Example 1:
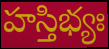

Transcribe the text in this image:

హస్తిభ్యః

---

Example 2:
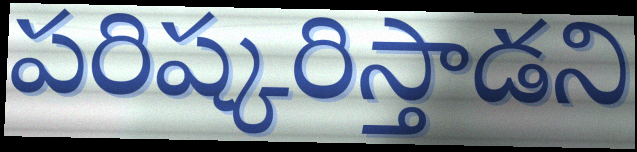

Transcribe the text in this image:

పరిష్కరిస్తాడని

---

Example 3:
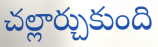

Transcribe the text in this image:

చల్లార్చుకుంది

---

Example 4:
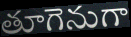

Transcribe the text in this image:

తూగెనుగా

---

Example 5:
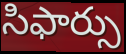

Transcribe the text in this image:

సిఫార్సు